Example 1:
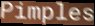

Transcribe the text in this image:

Pimples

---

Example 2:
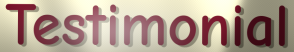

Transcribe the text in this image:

Testimonial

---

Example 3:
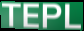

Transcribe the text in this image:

TEPL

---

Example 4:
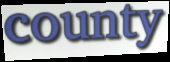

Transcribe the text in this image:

county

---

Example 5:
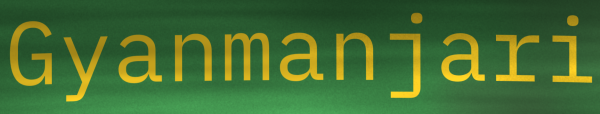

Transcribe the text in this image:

Gyanmanjari